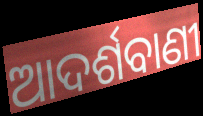
ଆଦର୍ଶବାଣୀ